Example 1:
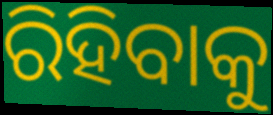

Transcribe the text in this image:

ରିହିବାକୁ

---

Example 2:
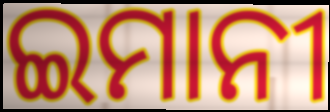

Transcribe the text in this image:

ଇମାନୀ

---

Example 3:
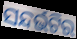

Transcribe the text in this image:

ସନ୍ଦର୍ଭଟିର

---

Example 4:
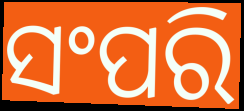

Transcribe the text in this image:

ସଂପରି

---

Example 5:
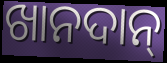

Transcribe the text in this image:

ଖାନଦାନ୍